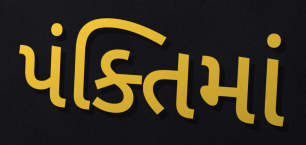
પંક્તિમાં